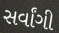
સર્વાંગી